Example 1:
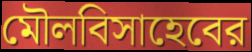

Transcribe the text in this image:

মৌলবিসাহেবের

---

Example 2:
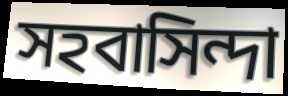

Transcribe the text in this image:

সহবাসিন্দা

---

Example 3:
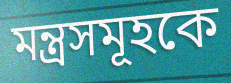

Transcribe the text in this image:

মন্ত্রসমূহকে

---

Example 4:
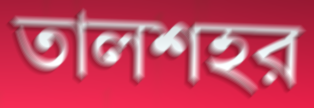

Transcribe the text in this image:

তালশহর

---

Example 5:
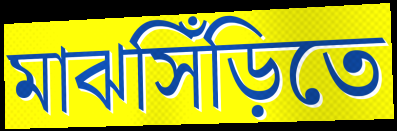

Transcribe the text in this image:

মাঝসিঁড়িতে